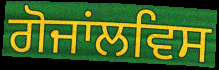
ਗੋਜਾਂਲਵਿਸ